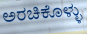
ಅರಚಿಕೊಳ್ಳು